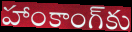
హాంకాంగ్‌కు